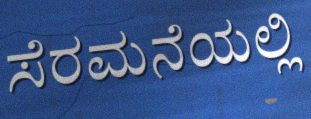
ಸೆರಮನೆಯಲ್ಲಿ